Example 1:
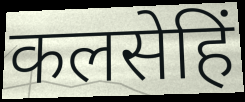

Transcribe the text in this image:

कलसेहिं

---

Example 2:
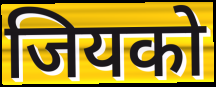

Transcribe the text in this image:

जियको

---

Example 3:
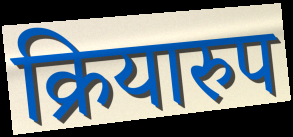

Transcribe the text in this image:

क्रियारुप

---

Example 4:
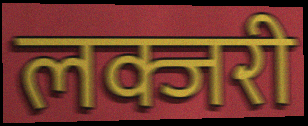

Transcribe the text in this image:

लक्जरी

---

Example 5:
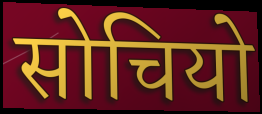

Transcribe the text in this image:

सोचियो